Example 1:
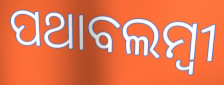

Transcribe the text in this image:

ପଥାବଲମ୍ବୀ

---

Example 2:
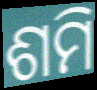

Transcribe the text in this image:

ଶମି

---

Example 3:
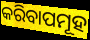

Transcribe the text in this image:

କରିବାପମୂହ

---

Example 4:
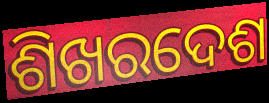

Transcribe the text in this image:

ଶିଖରଦେଶ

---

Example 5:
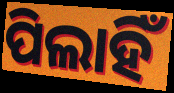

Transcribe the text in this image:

ପିଲାହିଁ